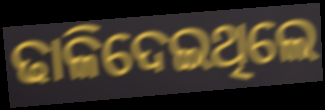
ଢାଳିଦେଇଥିଲେ